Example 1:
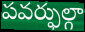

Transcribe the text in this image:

పవర్ఫుల్గా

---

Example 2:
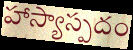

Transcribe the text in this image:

హాస్యాస్పదం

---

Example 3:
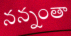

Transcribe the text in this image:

నన్నంతా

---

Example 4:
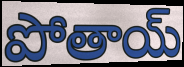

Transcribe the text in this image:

పోతాయ్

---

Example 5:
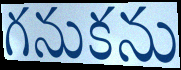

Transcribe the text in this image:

గనుకను